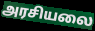
அரசியலை